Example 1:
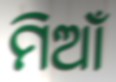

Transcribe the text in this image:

ମିଆଁ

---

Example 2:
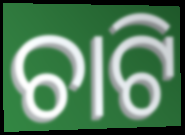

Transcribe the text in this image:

ଚାଟି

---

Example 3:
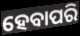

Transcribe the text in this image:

ହେବାପରି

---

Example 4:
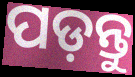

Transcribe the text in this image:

ପଡ଼ନ୍ତୁ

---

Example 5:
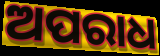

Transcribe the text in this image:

ଅପରାଧ